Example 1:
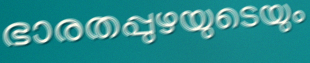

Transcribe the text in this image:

ഭാരതപ്പുഴയുടെയും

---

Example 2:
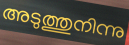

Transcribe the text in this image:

അടുത്തുനിന്നു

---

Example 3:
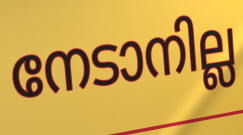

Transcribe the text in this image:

നേടാനില്ല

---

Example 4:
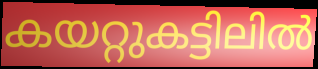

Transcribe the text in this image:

കയറ്റുകട്ടിലിൽ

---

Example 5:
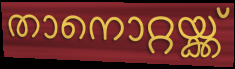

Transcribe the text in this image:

താനൊറ്റയ്ക്ക്